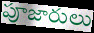
పూజారులు